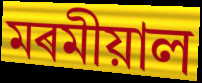
মৰমীয়াল